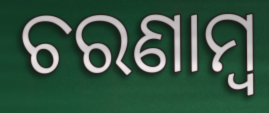
ଚରଣାମ୍ବ